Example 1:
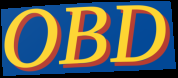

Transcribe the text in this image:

OBD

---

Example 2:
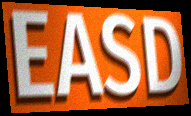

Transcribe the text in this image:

EASD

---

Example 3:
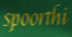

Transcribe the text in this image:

spoorthi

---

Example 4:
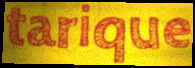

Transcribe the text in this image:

tarique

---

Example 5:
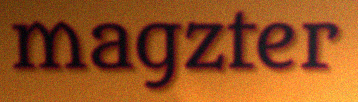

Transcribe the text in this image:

magzter